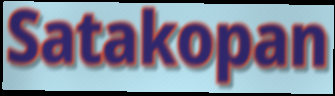
Satakopan